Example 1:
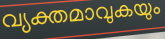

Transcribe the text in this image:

വ്യക്തമാവുകയും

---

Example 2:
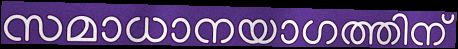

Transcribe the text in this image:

സമാധാനയാഗത്തിന്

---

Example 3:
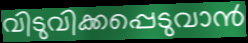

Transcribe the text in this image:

വിടുവിക്കപ്പെടുവാൻ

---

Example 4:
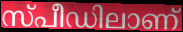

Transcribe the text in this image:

സ്പീഡിലാണ്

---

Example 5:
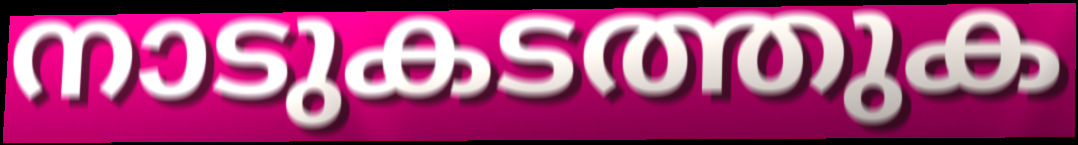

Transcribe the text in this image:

നാടുകടത്തുക